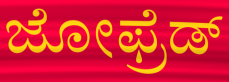
ಜೋಫ್ರೆಡ್